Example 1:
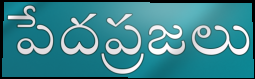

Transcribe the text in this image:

పేదప్రజలు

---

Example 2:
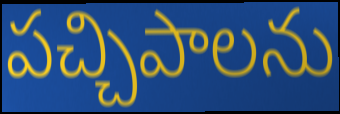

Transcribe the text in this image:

పచ్చిపాలను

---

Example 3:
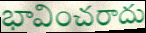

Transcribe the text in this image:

భావించరాదు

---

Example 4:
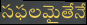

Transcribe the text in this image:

సఫలమైతేనే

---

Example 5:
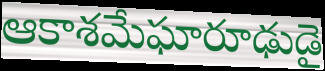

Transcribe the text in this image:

ఆకాశమేఘారూఢుడై